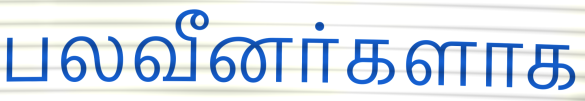
பலவீனர்களாக